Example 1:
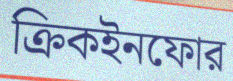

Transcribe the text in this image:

ক্রিকইনফোর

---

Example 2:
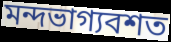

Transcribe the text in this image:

মন্দভাগ্যবশত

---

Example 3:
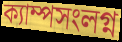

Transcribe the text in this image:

ক্যাম্পসংলগ্ন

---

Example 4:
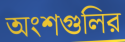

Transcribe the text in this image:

অংশগুলির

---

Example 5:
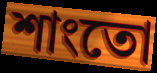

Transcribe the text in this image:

শাংতো